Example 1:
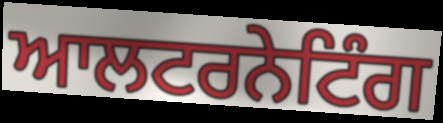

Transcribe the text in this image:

ਆਲਟਰਨੇਟਿੰਗ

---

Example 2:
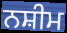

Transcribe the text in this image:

ਨਸ਼ੀਮ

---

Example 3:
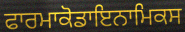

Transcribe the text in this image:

ਫਾਰਮਾਕੋਡਾਇਨਾਮਿਕਸ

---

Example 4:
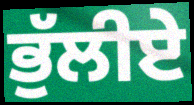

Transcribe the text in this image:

ਭੁੱਲੀਏ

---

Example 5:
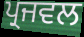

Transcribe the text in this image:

ਪ੍ਰਜਵਲ